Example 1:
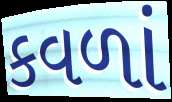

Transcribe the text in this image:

કવળાં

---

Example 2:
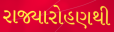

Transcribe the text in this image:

રાજ્યારોહણથી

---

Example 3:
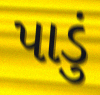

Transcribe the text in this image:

પાડું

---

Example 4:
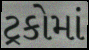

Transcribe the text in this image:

ટ્રકોમાં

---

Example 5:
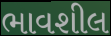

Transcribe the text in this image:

ભાવશીલ